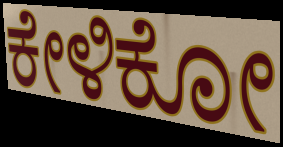
ಕೇಳಿಕೋ